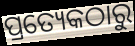
ପ୍ରତ୍ୟେକଠାରୁ